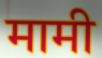
मामी